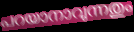
പറയാനാവുന്നതും